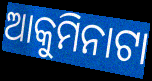
ଆକୁମିନାଟା